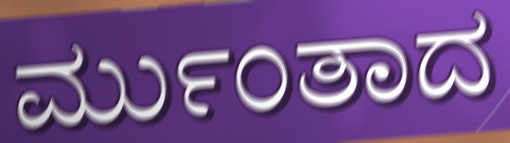
ರ್ಮುಂತಾದ